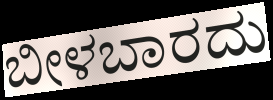
ಬೀಳಬಾರದು